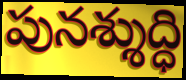
పునశ్శుద్ధి